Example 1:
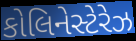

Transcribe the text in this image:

કોલિનેસ્ટેરેઝ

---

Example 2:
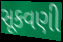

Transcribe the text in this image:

સૂકવણી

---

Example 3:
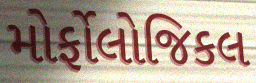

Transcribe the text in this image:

મોર્ફોલોજિકલ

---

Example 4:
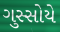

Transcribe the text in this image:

ગુસ્સોયે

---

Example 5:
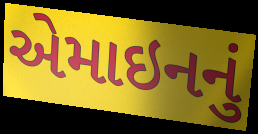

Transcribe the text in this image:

એમાઇનનું